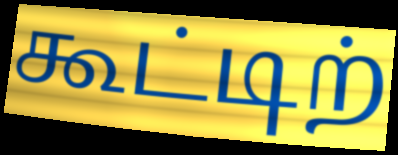
கூட்டிற்